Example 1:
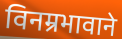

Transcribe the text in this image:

विनम्रभावाने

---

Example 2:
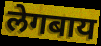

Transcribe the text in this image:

लेगबाय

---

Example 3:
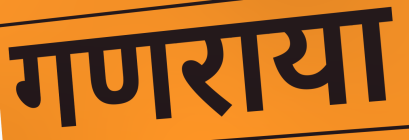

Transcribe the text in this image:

गणराया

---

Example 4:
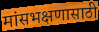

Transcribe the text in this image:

मांसभक्षणासाठी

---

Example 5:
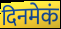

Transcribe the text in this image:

दिनमेकं